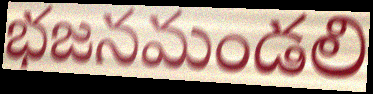
భజనమండలి